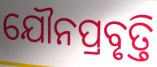
ଯୌନପ୍ରବୃତ୍ତି